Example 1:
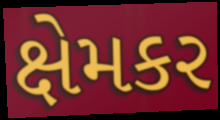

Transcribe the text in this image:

ક્ષેમકર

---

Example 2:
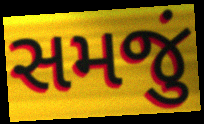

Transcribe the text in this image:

સમજું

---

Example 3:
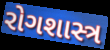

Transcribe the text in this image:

રોગશાસ્ત્ર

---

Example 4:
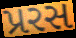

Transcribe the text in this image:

પ્રરસ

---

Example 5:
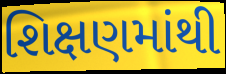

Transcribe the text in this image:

શિક્ષણમાંથી